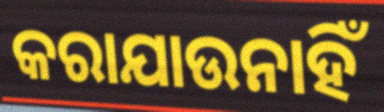
କରାଯାଉନାହିଁ